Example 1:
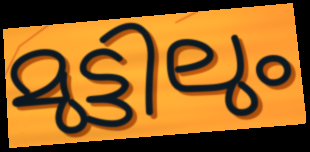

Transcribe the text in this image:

മുട്ടിലും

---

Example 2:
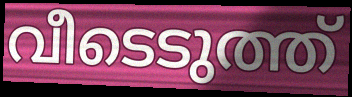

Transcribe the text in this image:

വീടെടുത്ത്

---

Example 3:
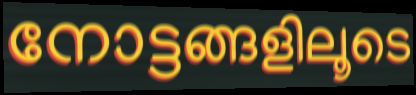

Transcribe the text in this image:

നോട്ടങ്ങളിലൂടെ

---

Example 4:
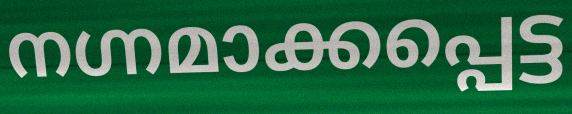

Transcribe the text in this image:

നഗ്നമാക്കപ്പെട്ട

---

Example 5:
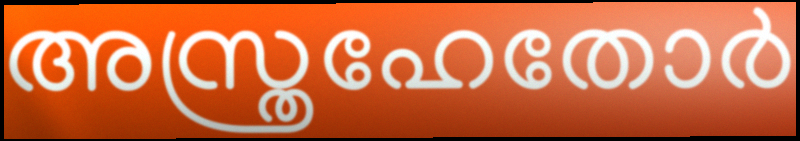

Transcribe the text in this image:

അസ്ത്രഹേതോർ